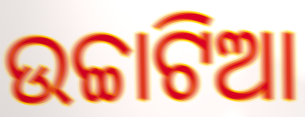
ଉଚ୍ଚାଟିଆ